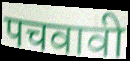
पचवावी